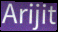
Arijit